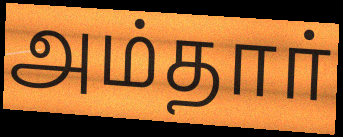
அம்தார்